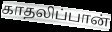
காதலிப்பான்